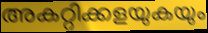
അകറ്റിക്കളയുകയും